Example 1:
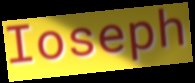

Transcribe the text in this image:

Ioseph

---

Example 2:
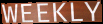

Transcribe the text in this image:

WEEKLY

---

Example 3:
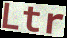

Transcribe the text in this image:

Ltr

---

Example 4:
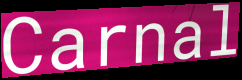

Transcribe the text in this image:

Carnal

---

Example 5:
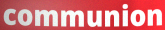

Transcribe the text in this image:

communion